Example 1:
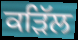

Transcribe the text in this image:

ਕੜਿੱਲ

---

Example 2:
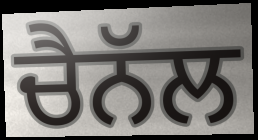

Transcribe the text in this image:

ਚੈਨੱਲ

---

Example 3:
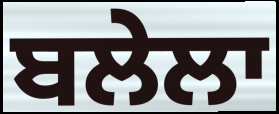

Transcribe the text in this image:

ਬਲੇਲਾ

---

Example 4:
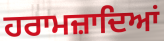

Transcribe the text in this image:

ਹਰਾਮਜ਼ਾਦਿਆਂ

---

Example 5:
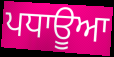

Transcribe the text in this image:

ਪਧਾਊਆ